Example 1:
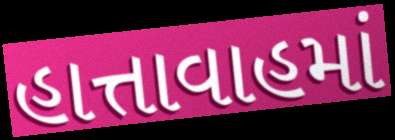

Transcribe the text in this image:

હાત્તાવાહમાં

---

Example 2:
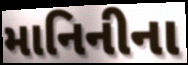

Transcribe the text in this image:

માનિનીના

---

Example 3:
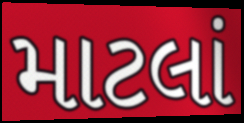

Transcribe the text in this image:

માટલાં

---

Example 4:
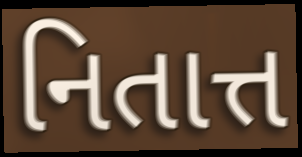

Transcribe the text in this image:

નિતાત્ત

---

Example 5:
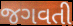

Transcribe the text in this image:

જગવતી